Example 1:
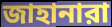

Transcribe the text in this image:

জাহানারা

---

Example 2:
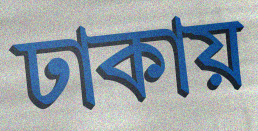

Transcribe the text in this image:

ঢাকায়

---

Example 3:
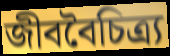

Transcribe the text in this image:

জীববৈচিত্র্য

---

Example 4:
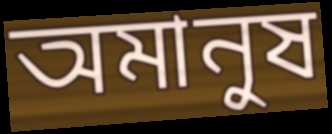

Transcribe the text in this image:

অমানুষ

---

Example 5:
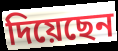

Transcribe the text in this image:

দিয়েছেন